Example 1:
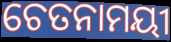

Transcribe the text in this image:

ଚେତନାମୟୀ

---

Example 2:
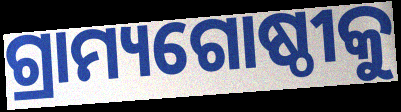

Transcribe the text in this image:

ଗ୍ରାମ୍ୟଗୋଷ୍ଠୀକୁ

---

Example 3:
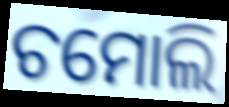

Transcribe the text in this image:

ଚମୋଲି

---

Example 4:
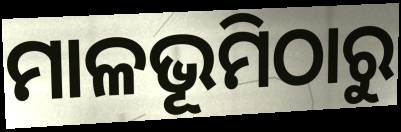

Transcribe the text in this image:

ମାଳଭୂମିଠାରୁ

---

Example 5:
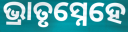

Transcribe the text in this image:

ଭ୍ରାତୃସ୍ନେହେ